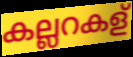
കല്ലറകള്